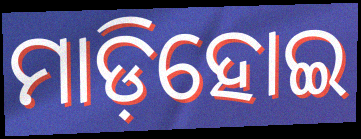
ମାଡ଼ିହୋଇ